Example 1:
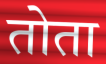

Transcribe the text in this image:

तोता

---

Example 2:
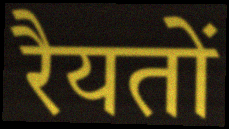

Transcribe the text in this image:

रैयतों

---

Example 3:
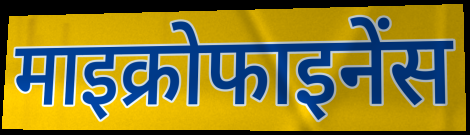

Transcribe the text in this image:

माइक्रोफाइनेंस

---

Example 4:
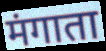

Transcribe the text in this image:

मंगाता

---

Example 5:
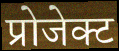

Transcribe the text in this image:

प्रोजेक्ट